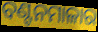
ବଣ୍ଟନମାଳାର